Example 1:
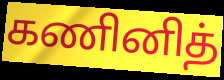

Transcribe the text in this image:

கணினித்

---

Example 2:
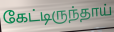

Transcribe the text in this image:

கேட்டிருந்தாய்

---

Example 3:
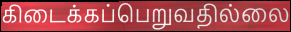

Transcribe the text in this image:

கிடைக்கப்பெறுவதில்லை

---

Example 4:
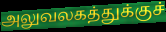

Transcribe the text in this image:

அலுவலகத்துக்குச்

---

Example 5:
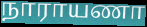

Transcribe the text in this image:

நாராயணா